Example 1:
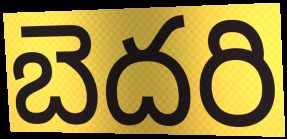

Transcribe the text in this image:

బెదరి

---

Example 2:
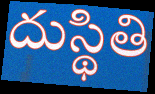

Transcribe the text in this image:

దుస్థితి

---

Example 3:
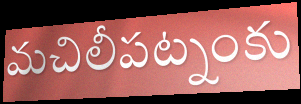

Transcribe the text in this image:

మచిలీపట్నంకు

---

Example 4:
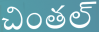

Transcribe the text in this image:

చింతల్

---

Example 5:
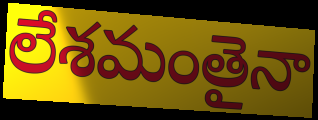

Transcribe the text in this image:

లేశమంతైనా